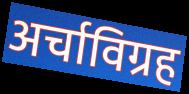
अर्चाविग्रह